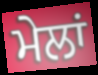
ਮੇਲਾਂ